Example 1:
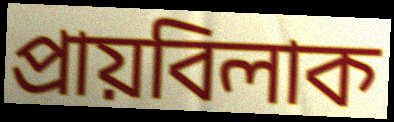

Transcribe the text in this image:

প্ৰায়বিলাক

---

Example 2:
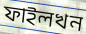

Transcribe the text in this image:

ফাইলখন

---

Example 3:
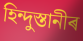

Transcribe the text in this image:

হিন্দুস্তানীৰ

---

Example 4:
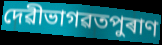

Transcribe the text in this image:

দেৱীভাগৱতপুৰাণ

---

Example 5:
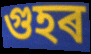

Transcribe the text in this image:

গুহৰ